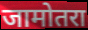
जामोतरा